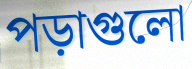
পড়াগুলো